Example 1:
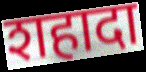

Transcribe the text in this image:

शहादा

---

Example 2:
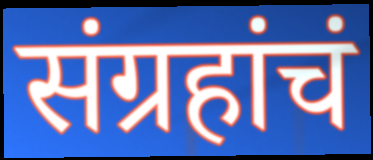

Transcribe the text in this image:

संग्रहांचं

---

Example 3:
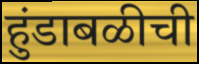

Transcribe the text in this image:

हुंडाबळीची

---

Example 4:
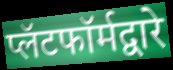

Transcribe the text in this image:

प्लॅटफॉर्मद्वारे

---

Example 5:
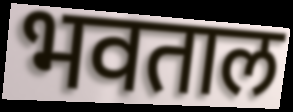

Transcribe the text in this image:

भवताल